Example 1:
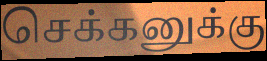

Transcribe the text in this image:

செக்கனுக்கு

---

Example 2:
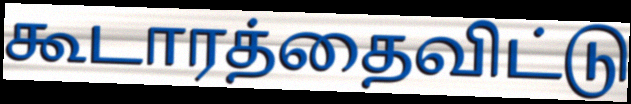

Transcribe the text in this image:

கூடாரத்தைவிட்டு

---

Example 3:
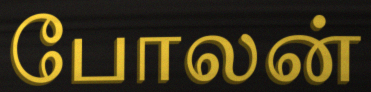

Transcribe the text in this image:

போலன்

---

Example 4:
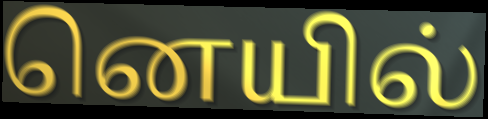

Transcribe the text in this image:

னெயில்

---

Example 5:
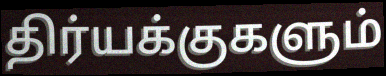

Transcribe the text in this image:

திர்யக்குகளும்